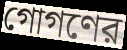
গোগণের